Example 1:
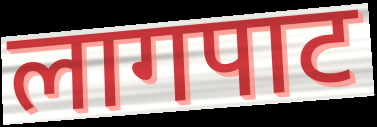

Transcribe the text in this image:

लागपाट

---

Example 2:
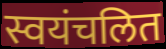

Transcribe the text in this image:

स्वयंचलित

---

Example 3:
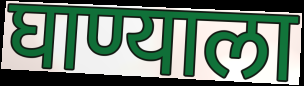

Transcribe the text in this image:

घाण्याला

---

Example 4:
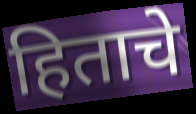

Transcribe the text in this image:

हिताचे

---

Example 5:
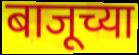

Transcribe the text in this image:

बाजूच्या